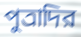
পুত্রাদির